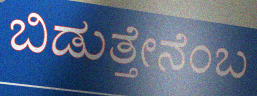
ಬಿಡುತ್ತೇನೆಂಬ